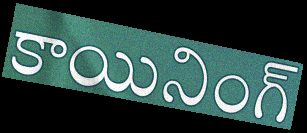
కాయినింగ్